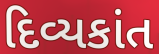
દિવ્યકાંત